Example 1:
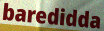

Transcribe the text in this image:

baredidda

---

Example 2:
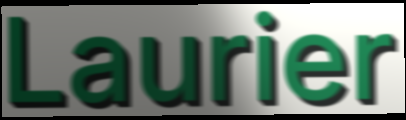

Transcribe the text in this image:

Laurier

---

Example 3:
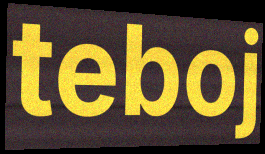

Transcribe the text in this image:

teboj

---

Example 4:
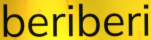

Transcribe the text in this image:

beriberi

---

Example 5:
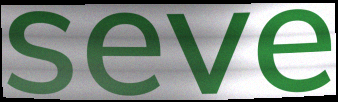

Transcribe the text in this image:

seve